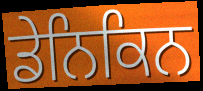
ਡੇਨਿਕਿਨ